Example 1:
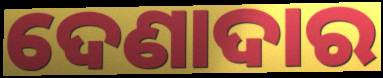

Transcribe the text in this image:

ଦେଣାଦାର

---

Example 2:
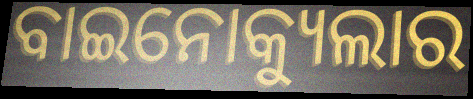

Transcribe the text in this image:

ବାଇନୋକ୍ୟୁଲାର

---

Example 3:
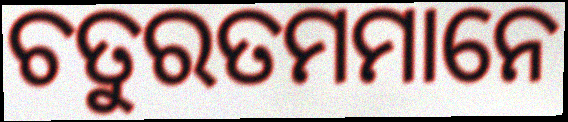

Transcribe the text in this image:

ଚତୁରତମମାନେ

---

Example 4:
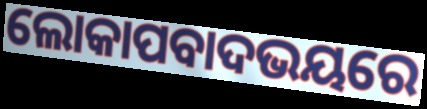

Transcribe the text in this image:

ଲୋକାପବାଦଭୟରେ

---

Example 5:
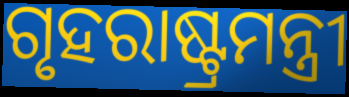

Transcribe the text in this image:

ଗୃହରାଷ୍ଟ୍ରମନ୍ତ୍ରୀ